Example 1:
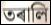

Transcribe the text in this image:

তৰালি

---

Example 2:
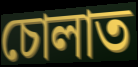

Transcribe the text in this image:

চোলাত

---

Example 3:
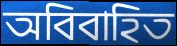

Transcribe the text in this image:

অবিবাহিত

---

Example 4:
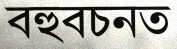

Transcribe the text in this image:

বহুবচনত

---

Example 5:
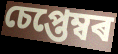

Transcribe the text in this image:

চেপ্তেম্বৰ